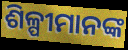
ଶିଳ୍ପୀମାନଙ୍କ